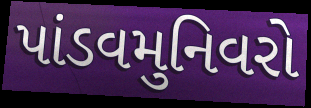
પાંડવમુનિવરો